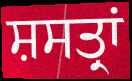
ਸ਼ਸਤ੍ਰਾਂ